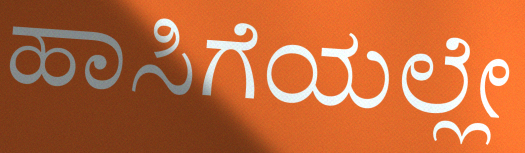
ಹಾಸಿಗೆಯಲ್ಲೇ